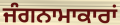
ਜੰਗਨਾਮਾਕਾਰਾਂ